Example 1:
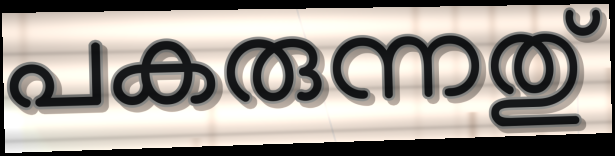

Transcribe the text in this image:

പകരുന്നതു്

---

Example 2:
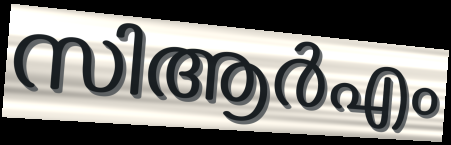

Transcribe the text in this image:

സിആർഎം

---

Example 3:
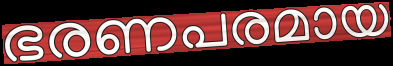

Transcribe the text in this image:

ഭരണപരമായ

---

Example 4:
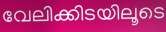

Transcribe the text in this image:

വേലിക്കിടയിലൂടെ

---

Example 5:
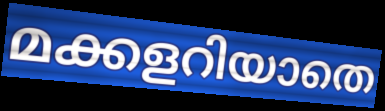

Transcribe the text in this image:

മക്കളറിയാതെ